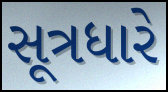
સૂત્રધારે